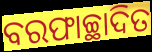
ବରଫାଚ୍ଛାଦିତ